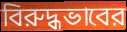
বিরুদ্ধভাবের